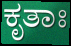
ಕೃತಾಃ